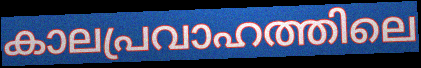
കാലപ്രവാഹത്തിലെ